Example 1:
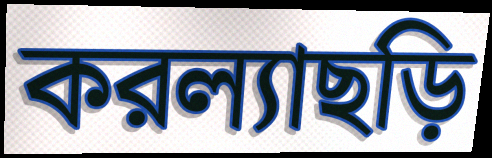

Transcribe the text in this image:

করল্যাছড়ি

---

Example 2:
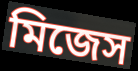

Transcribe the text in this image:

মিজেস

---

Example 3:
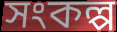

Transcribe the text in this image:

সংকল্প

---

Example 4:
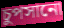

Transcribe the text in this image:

চুপসানো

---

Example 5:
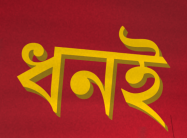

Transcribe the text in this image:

ধনই